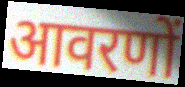
आवरणों